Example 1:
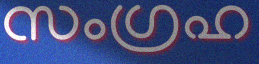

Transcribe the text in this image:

സംഗ്രഹ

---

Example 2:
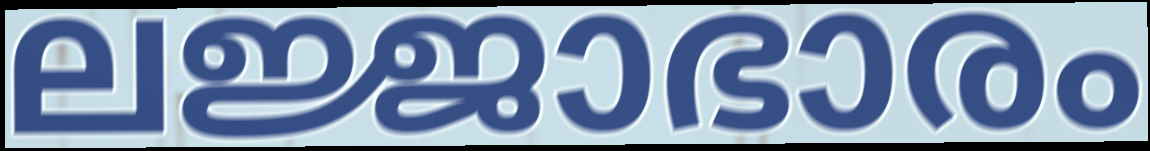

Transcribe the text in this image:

ലജ്ജാഭാരം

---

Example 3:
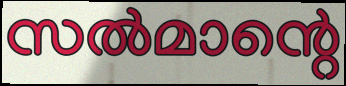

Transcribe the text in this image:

സൽമാന്റെ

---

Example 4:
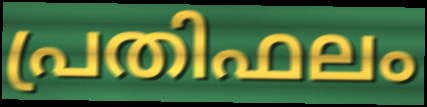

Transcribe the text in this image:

പ്രതിഫലം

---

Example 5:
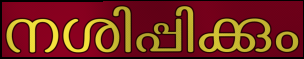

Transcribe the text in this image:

നശിപ്പിക്കും